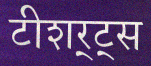
टीशर्ट्स